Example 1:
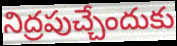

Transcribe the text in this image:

నిద్రపుచ్చేందుకు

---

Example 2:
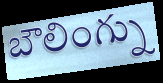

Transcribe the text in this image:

బౌలింగ్ను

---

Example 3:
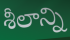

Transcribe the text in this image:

శీలాన్ని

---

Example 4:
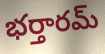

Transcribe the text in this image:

భర్తారమ్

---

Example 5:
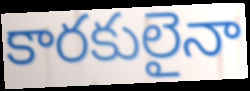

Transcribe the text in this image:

కారకులైనా